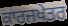
ਕਾਰਜਖੇਤਰ